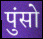
पुंसो